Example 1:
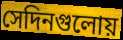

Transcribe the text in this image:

সেদিনগুলোয়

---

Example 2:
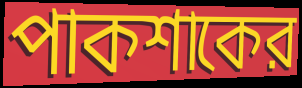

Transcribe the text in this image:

পাকশাকের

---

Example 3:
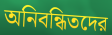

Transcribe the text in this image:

অনিবন্ধিতদের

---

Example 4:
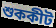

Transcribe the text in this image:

শুককীট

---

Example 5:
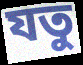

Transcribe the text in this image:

যতু